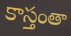
కాస్తంతా